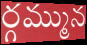
ర్గమ్మున